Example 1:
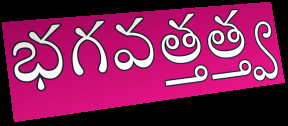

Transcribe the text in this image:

భగవత్తత్త్వ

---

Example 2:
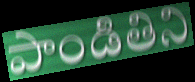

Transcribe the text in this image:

పాండితిని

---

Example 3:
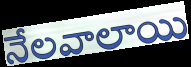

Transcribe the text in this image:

నేలవాలాయి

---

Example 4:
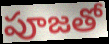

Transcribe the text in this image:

పూజతో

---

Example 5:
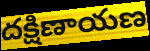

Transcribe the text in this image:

దక్షిణాయణ